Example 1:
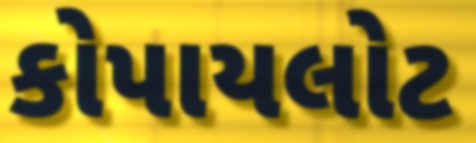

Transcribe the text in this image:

કોપાયલોટ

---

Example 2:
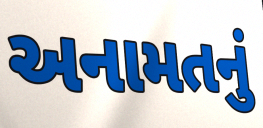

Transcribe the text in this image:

અનામતનું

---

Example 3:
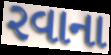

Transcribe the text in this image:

રવાના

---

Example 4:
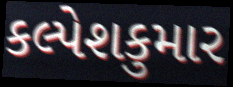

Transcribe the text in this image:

કલ્પેશકુમાર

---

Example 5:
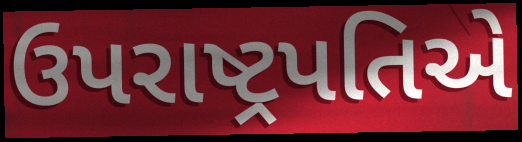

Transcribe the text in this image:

ઉપરાષ્ટ્રપતિએ